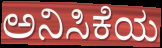
ಅನಿಸಿಕೆಯ